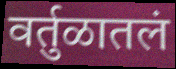
वर्तुळातलं